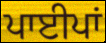
ਪਾਈਪਾਂ